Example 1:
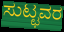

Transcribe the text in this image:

ಸುಟ್ಟವರ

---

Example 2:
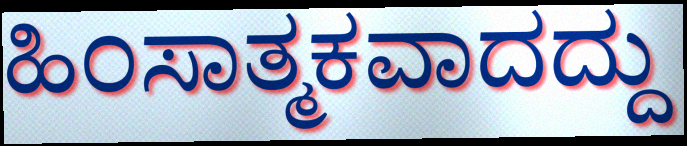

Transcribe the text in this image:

ಹಿಂಸಾತ್ಮಕವಾದದ್ದು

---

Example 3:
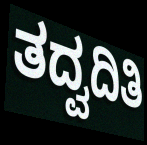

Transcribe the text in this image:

ತದ್ವದಿತಿ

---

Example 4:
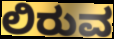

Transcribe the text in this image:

ಲಿರುವ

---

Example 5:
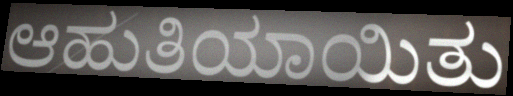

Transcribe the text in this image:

ಆಹುತಿಯಾಯಿತು